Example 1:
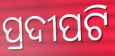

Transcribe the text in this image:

ପ୍ରଦୀପଟି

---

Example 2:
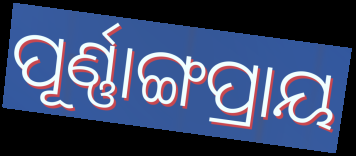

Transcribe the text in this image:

ପୂର୍ଣ୍ଣାଙ୍ଗପ୍ରାୟ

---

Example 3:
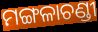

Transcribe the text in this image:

ମଙ୍ଗଳାଚଣ୍ଡୀ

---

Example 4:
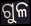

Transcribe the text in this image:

ଗୁଳ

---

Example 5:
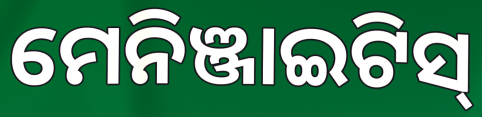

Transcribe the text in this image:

ମେନିଞ୍ଜାଇଟିସ୍